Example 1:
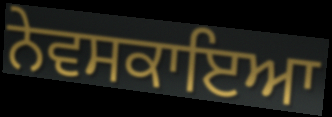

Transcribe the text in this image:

ਨੇਵਸਕਾਇਆ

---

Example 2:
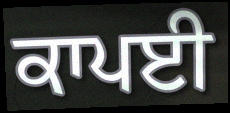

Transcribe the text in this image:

ਕਾਪਈ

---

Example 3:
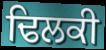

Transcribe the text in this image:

ਢਿਲਕੀ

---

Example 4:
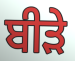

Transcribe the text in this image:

ਬੀੜੇ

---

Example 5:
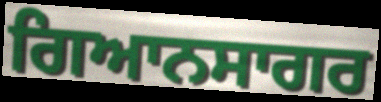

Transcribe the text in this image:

ਗਿਆਨਸਾਗਰ